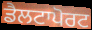
ਡੈਲਟਾਪੋਰਟ